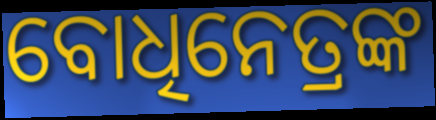
ବୋଧିନେତ୍ରଙ୍କ